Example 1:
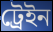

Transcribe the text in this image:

ট্ৰেইন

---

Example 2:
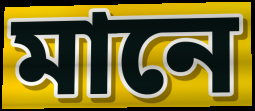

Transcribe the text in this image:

মানে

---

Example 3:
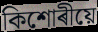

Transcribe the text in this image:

কিশোৰীয়ে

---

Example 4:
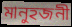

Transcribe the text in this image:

মানুহজনী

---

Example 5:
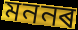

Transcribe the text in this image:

মননৰ